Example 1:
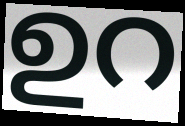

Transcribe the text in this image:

ഉറ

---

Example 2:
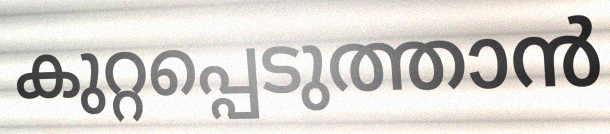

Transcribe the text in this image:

കുറ്റപ്പെടുത്താൻ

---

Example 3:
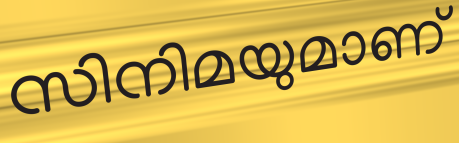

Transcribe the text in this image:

സിനിമയുമാണ്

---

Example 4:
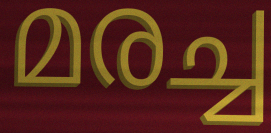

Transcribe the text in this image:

മരച്ച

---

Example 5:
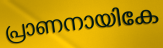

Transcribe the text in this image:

പ്രാണനായികേ